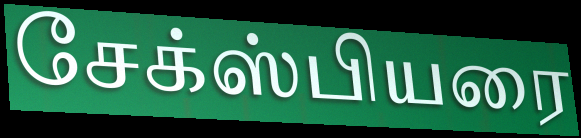
சேக்ஸ்பியரை